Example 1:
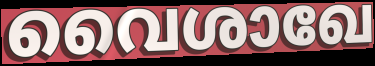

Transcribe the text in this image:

വൈശാഖേ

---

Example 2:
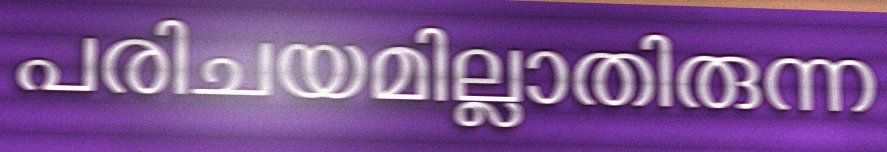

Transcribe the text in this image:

പരിചയമില്ലാതിരുന്ന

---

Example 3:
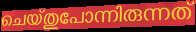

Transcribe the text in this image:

ചെയ്തുപോന്നിരുന്നത്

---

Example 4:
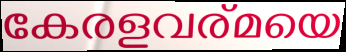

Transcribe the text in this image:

കേരളവര്മയെ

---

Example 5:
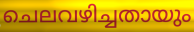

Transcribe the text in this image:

ചെലവഴിച്ചതായും